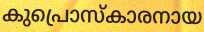
കുപ്രൊസ്കാരനായ